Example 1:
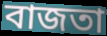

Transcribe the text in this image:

বাজতা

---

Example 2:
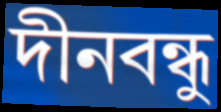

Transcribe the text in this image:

দীনবন্ধু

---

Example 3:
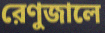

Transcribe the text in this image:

রেণুজালে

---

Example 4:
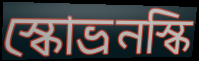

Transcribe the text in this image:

স্কোভ্রনস্কি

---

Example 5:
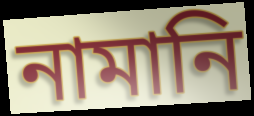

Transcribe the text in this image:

নামানি